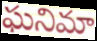
ఘనిమా